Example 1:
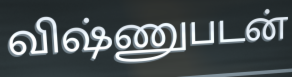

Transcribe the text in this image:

விஷ்ணுபடன்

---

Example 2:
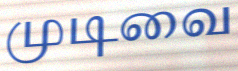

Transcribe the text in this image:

முடிவை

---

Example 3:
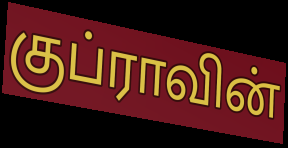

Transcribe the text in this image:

குப்ராவின்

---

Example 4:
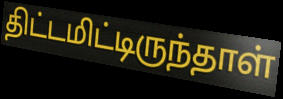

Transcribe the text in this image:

திட்டமிட்டிருந்தாள்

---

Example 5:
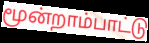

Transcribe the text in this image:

மூன்றாம்பாட்டு